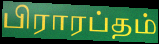
பிராரப்தம்